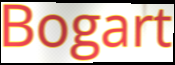
Bogart